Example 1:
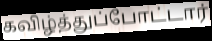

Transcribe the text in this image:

கவிழ்த்துப்போட்டார்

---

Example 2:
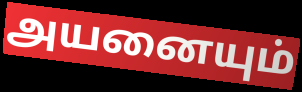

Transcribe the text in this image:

அயனையும்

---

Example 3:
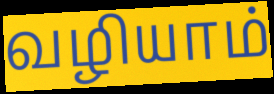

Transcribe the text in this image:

வழியாம்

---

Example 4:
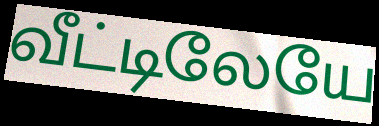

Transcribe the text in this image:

வீட்டிலேயே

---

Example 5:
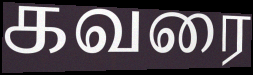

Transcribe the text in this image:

கவரை